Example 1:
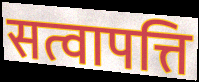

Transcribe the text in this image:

सत्वापत्ति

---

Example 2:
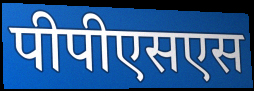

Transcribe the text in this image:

पीपीएसएस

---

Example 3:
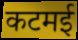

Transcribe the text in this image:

कटमई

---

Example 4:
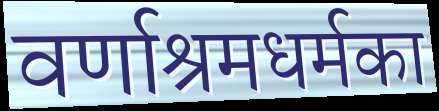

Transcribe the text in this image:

वर्णाश्रमधर्मका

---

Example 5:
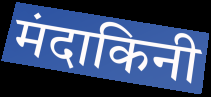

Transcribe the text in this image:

मंदाकिनी